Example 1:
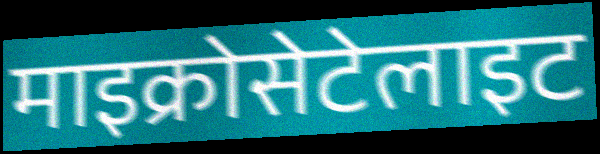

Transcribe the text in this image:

माइक्रोसेटेलाइट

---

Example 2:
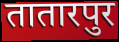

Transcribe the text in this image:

तातारपुर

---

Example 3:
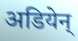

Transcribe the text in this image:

अडियेन्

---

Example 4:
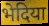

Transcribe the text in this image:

भेदिया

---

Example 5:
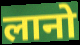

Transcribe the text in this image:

लानो